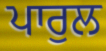
ਪਾਰੁਲ